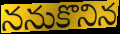
ననుకొనిన